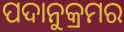
ପଦାନୁକ୍ରମର